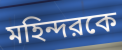
মহিন্দরকে